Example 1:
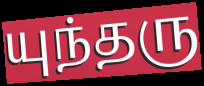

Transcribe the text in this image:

யுந்தரு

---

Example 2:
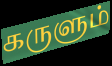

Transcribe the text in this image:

கருளும்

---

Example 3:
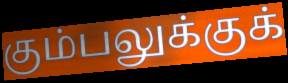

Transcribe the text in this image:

கும்பலுக்குக்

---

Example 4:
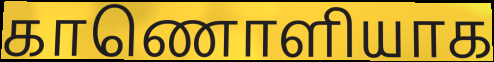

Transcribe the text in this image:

காணொளியாக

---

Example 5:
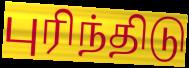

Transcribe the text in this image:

புரிந்திடு